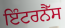
ਇੰਟਰਨੈੱਸ